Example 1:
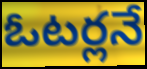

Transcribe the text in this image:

ఓటర్లనే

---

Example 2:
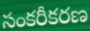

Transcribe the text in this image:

సంకరీకరణ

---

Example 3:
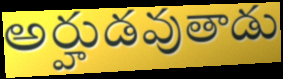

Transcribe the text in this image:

అర్హుడవుతాడు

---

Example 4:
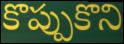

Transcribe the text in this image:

కొప్పుకొని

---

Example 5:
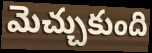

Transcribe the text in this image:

మెచ్చుకుంది